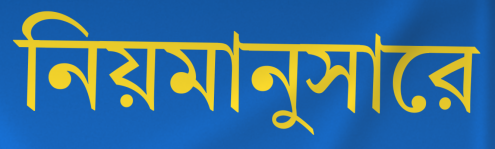
নিয়মানুসারে